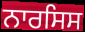
ਨਾਰਸਿਸ